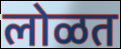
लोळत